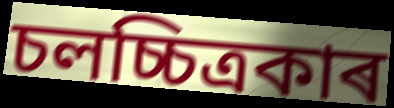
চলচ্চিত্ৰকাৰ